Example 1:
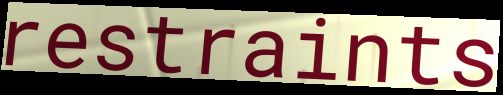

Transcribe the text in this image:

restraints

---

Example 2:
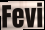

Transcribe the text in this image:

Fevi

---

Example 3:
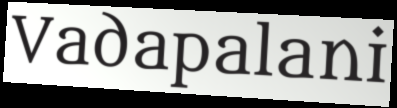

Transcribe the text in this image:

Vadapalani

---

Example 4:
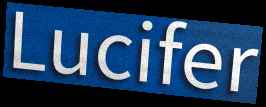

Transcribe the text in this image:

Lucifer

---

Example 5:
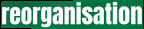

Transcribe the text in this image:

reorganisation